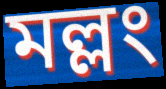
মল্লং